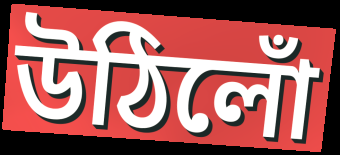
উঠিলোঁ